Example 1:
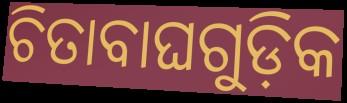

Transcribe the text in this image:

ଚିତାବାଘଗୁଡ଼ିକ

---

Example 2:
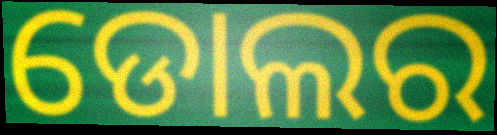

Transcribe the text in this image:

ଡୋଲର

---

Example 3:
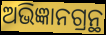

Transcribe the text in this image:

ଅଭିଜ୍ଞାନଗ୍ରନ୍ଥ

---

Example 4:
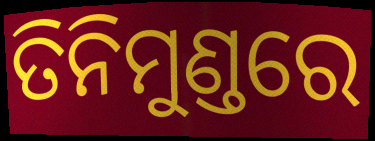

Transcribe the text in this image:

ତିନିମୁଣ୍ଡରେ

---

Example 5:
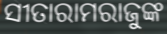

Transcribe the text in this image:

ସୀତାରାମରାଜୁଙ୍କ